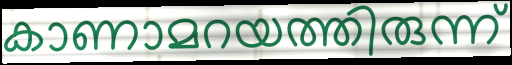
കാണാമറയത്തിരുന്ന്